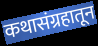
कथासंग्रहातून